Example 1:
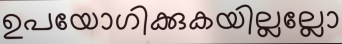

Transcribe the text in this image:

ഉപയോഗിക്കുകയില്ലല്ലോ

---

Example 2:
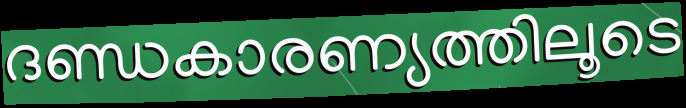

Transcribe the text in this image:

ദണ്ഡകാരണ്യത്തിലൂടെ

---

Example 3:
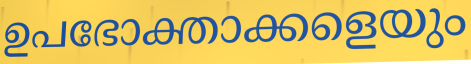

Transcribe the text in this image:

ഉപഭോക്താക്കളെയും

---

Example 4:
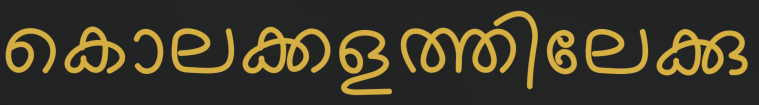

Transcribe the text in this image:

കൊലക്കളത്തിലേക്കു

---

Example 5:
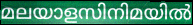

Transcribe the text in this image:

മലയാളസിനിമയിൽ